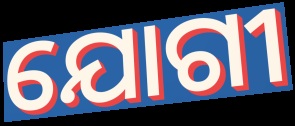
ଯୋଗୀ